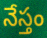
నేస్తం